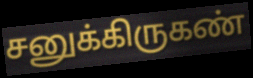
சனுக்கிருகண்